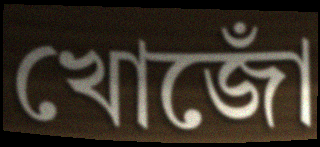
খোজোঁ